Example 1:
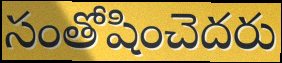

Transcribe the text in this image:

సంతోషించెదరు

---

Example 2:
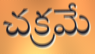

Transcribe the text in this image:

చక్రమే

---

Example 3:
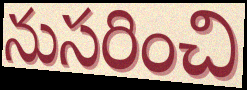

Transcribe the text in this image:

నుసరించి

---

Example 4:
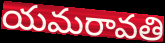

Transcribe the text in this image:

యమరావతి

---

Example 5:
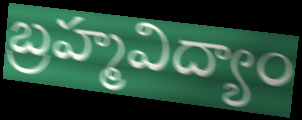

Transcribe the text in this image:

బ్రహ్మవిద్యాం